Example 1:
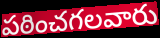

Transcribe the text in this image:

పఠించగలవారు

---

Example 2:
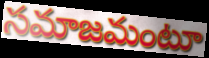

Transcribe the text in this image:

సమాజమంటూ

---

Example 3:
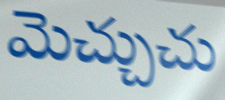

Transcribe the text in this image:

మెచ్చుచు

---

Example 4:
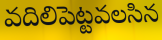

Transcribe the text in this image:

వదిలిపెట్టవలసిన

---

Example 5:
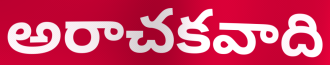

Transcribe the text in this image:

అరాచకవాది